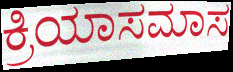
ಕ್ರಿಯಾಸಮಾಸ